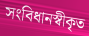
সংবিধানস্বীকৃত